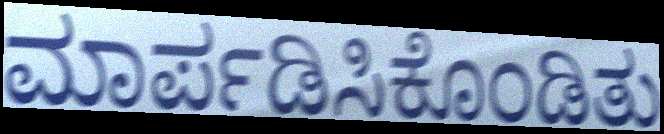
ಮಾರ್ಪಡಿಸಿಕೊಂಡಿತು